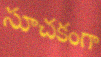
సూచకంగా